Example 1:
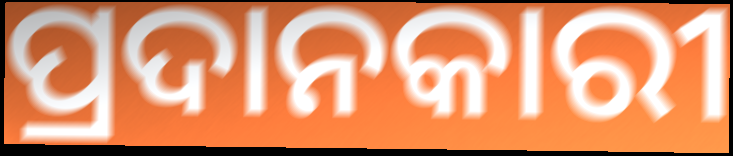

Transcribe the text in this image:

ପ୍ରଦାନକାରୀ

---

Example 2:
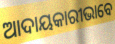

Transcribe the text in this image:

ଆଦାୟକାରୀଭାବେ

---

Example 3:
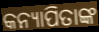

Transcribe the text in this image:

କନ୍ୟାପିତାଙ୍କ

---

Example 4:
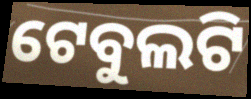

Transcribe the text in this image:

ଟେବୁଲଟି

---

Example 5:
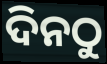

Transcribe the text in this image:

ଦିନଠୁ